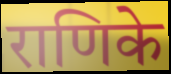
राणिके